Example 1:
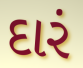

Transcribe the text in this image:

દારં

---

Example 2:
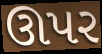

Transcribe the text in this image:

ઊપર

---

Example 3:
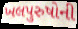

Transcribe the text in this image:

ખલપુરુષોની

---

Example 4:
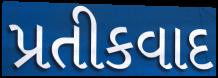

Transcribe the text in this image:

પ્રતીકવાદ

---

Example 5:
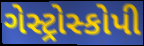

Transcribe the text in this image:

ગેસ્ટ્રોસ્કોપી